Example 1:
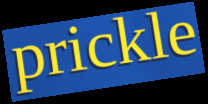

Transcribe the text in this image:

prickle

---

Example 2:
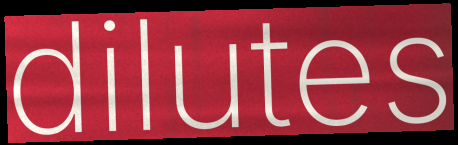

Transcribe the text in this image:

dilutes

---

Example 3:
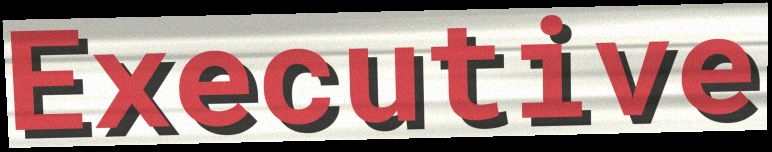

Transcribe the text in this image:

Executive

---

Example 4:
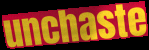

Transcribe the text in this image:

unchaste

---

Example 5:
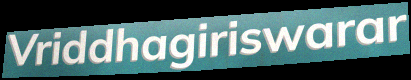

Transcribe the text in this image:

Vriddhagiriswarar